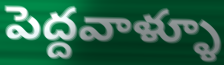
పెద్దవాళ్ళూ